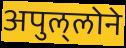
अपुल्लोने